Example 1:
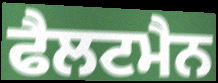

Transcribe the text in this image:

ਫੈਲਟਮੈਨ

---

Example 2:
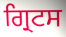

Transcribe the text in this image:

ਗ੍ਰਿਟਸ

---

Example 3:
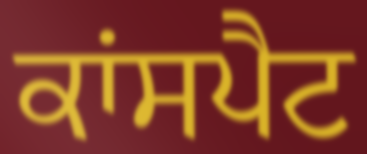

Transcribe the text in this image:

ਕਾਂਸਪੈਟ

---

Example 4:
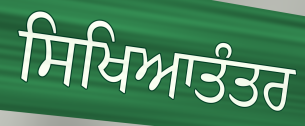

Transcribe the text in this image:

ਸਿਖਿਆਤੰਤਰ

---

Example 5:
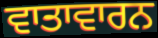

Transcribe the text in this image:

ਵਾਤਾਵਾਰਨ